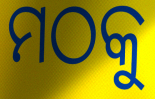
ମଠକୁ